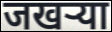
जखऱ्या